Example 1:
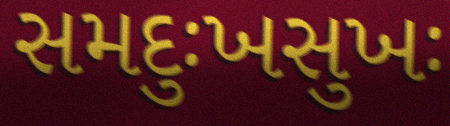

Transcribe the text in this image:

સમદુઃખસુખઃ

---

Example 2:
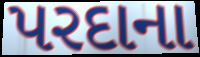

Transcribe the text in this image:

પરદાના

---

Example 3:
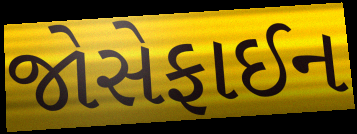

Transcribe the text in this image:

જોસેફાઈન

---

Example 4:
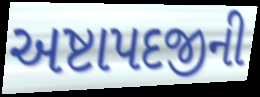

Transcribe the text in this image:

અષ્ટાપદજીની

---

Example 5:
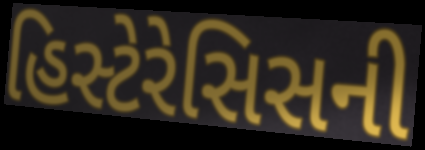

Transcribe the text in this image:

હિસ્ટેરેસિસની